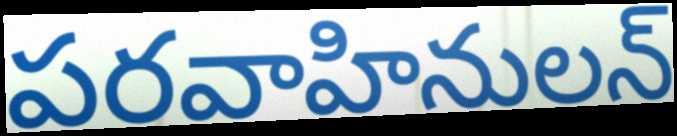
పరవాహినులన్